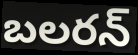
బలరన్